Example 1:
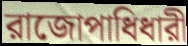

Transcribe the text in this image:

রাজোপাধিধারী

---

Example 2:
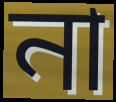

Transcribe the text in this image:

না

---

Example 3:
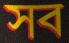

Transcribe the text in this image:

সব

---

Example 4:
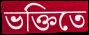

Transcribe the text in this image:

ভক্তিতে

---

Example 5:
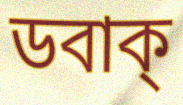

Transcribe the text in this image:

ডবাক্